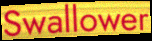
Swallower